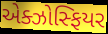
એક્ઝોસ્ફિયર